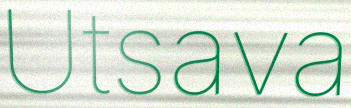
Utsava